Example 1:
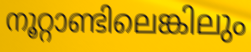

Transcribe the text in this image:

നൂറ്റാണ്ടിലെങ്കിലും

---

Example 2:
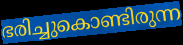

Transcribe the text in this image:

ഭരിച്ചുകൊണ്ടിരുന്ന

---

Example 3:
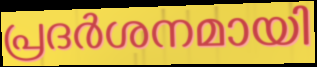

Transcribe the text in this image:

പ്രദർശനമായി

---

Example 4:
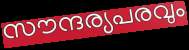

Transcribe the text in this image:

സൗന്ദര്യപരവും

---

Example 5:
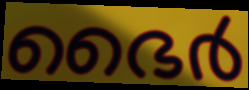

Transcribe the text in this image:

ഭൈർ